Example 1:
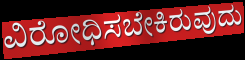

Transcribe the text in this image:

ವಿರೋಧಿಸಬೇಕಿರುವುದು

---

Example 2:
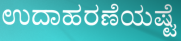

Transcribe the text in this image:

ಉದಾಹರಣೆಯಷ್ಟೆ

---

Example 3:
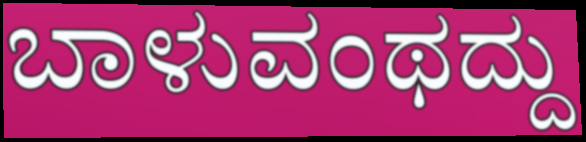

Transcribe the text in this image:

ಬಾಳುವಂಥದ್ದು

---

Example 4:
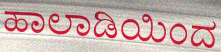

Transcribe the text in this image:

ಹಾಲಾಡಿಯಿಂದ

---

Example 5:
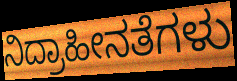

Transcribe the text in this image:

ನಿದ್ರಾಹೀನತೆಗಳು